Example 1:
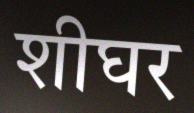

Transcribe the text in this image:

शीघर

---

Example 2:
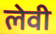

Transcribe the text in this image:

लेवी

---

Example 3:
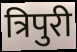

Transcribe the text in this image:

त्रिपुरी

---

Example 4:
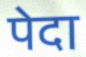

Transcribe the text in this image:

पेदा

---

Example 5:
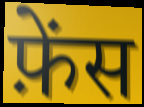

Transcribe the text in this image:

फ़ेंस